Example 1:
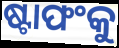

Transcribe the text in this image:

ଷ୍ଟାଫଂକୁ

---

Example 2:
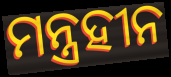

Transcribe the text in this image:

ମନ୍ତ୍ରହୀନ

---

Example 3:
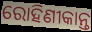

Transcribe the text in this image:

ରୋହିଣୀକାନ୍ତ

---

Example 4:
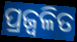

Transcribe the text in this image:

ପ୍ରଜ୍ୱଳିତ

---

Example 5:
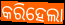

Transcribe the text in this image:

କରିହେଲା